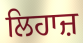
ਲਿਹਾਜ਼